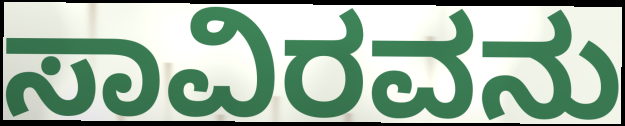
ಸಾವಿರವನು